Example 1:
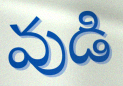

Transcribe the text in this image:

వుడి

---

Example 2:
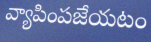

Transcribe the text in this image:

వ్యాపింపజేయటం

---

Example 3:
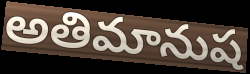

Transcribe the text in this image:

అతిమానుష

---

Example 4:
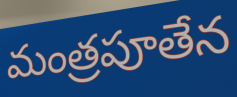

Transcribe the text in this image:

మంత్రపూతేన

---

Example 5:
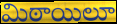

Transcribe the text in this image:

మిఠాయిలూ